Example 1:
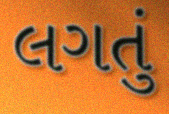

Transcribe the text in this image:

લગતું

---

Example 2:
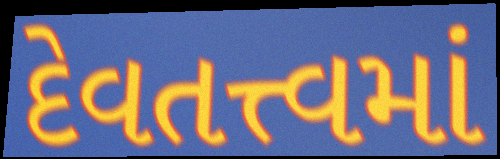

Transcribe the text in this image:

દેવતત્ત્વમાં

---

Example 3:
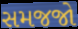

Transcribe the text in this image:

સમજજો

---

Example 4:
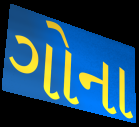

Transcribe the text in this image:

ગોના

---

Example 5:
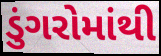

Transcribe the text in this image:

ડુંગરોમાંથી